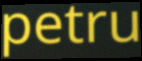
petru